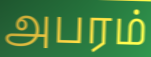
அபரம்